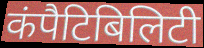
कंपैटिबिलिटी